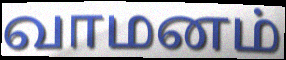
வாமனம்